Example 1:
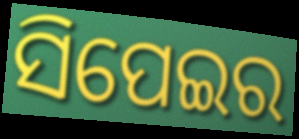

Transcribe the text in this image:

ସିପେଇର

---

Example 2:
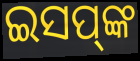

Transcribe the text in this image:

ଇସପ୍‌ଙ୍କ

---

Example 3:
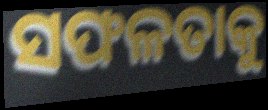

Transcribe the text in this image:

ସଫଳତାକୁ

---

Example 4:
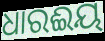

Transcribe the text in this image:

ଧାରଈୟ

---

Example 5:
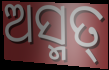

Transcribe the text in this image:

ଅସ୍ମତ୍